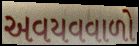
અવયવવાળો